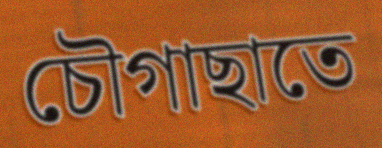
চৌগাছাতে